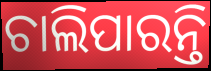
ଚାଲିପାରନ୍ତି